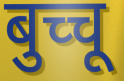
बुच्चू